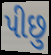
પીછુ